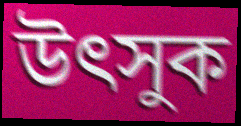
উৎসুক